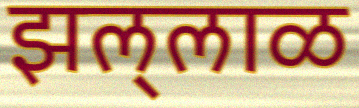
झल्लाळ